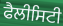
ਫੈਲੀਸਿਟੀ